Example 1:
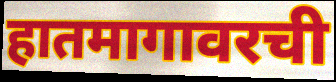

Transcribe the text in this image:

हातमागावरची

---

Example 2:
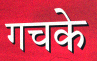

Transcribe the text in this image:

गचके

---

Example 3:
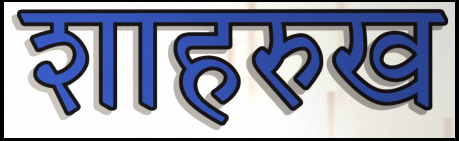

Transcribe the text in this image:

शाहरुख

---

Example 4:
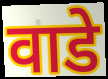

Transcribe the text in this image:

वाडे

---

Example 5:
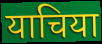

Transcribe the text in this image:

याचिया